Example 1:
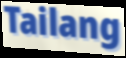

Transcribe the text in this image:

Tailang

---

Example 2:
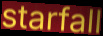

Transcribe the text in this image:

starfall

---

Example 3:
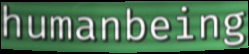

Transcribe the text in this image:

humanbeing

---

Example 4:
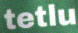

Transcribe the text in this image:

tetlu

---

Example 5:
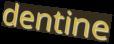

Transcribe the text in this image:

dentine